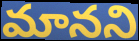
మానని